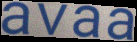
avaa